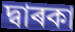
দ্বাৰকা